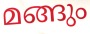
മങ്ങും